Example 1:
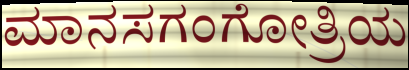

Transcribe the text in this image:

ಮಾನಸಗಂಗೋತ್ರಿಯ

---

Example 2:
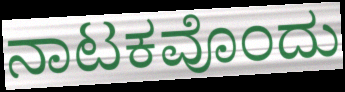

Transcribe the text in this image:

ನಾಟಕವೊಂದು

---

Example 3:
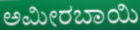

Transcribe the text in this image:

ಅಮೀರಬಾಯಿ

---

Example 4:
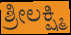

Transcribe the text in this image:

ಶ್ರೀಲಕ್ಷ್ಮಿ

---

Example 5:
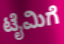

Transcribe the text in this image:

ಟೈಮಿಗೆ